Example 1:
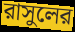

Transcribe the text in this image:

রাসুলের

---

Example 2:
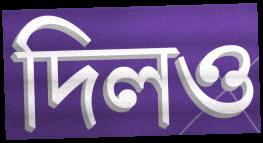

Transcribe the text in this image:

দিলও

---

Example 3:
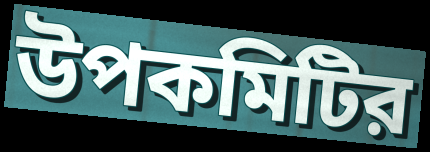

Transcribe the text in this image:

উপকমিটির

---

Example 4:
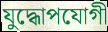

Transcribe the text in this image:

যুদ্ধোপযোগী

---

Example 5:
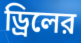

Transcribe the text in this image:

ড্রিলের